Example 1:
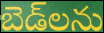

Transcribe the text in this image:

బెడ్‌లను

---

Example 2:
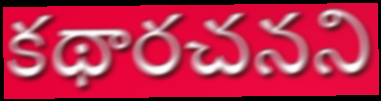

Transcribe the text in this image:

కథారచనని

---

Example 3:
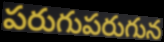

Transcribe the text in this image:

పరుగుపరుగున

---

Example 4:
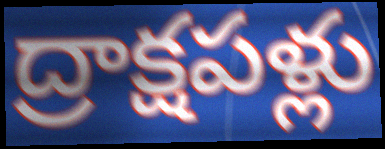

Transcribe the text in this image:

ద్రాక్షపళ్లు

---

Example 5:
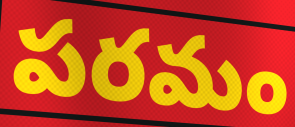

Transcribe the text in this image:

పరమం